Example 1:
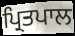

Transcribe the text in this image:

ਪ੍ਰਿਤਪਾਲ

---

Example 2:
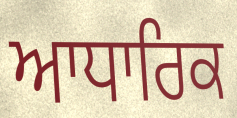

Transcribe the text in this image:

ਆਧਾਰਿਕ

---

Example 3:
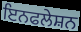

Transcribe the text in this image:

ਇਨਫਲੇਸ਼ਨ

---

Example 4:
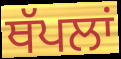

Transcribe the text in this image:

ਥੱਪਲਾਂ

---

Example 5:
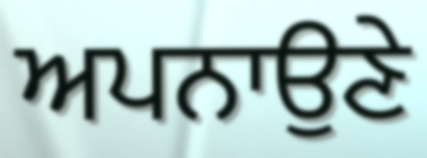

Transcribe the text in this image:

ਅਪਨਾਉਣੇ